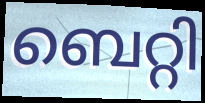
ബെറ്റി